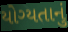
યોગ્યતાનું